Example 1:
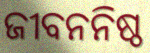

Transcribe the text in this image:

ଜୀବନନିଷ୍ଠ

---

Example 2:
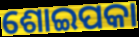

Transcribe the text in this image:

ଶୋଇପକା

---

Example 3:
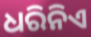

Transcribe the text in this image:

ଧରିନିଏ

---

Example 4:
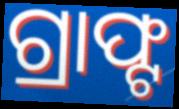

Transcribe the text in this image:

ଗ୍ରାଫ୍ଟ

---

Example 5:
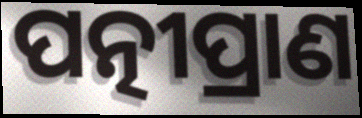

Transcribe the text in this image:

ପତ୍ନୀପ୍ରାଣ